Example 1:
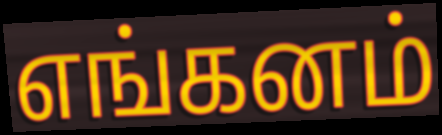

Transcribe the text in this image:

எங்கனம்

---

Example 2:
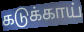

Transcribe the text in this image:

கடுக்காய்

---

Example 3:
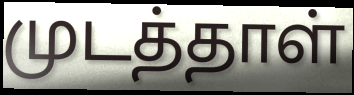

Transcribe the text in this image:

முடத்தாள்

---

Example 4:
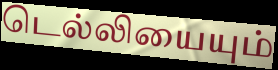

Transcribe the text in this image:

டெல்லியையும்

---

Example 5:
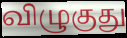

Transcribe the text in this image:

விழுகுது